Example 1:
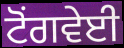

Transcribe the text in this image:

ਟੋਂਗਵੇਈ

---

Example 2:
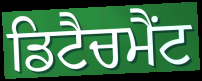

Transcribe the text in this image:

ਡਿਟੈਚਮੈਂਟ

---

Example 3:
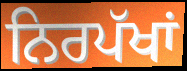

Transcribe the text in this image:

ਨਿਰਪੱਖਾਂ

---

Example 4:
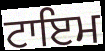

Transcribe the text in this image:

ਟਾਇਮ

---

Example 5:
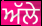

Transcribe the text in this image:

ਅੱਲੇ